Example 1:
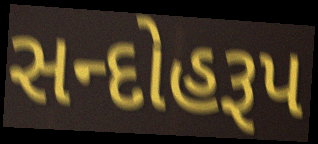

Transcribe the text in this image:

સન્દોહરૂપ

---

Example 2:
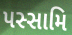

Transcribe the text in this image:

પસ્સામિ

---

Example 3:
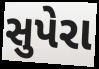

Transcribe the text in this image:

સુપેરા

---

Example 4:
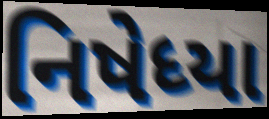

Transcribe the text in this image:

નિષેધ્યા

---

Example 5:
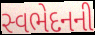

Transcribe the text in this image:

સ્વભેદનની